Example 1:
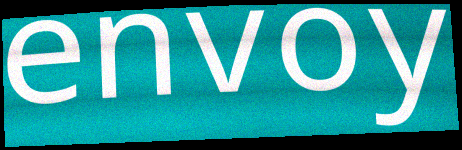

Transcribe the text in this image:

envoy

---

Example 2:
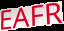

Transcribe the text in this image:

EAFR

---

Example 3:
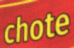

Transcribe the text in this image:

chote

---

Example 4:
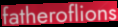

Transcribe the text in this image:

fatheroflions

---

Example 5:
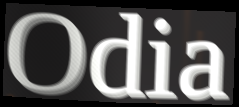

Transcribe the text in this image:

Odia